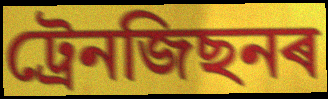
ট্ৰেনজিছনৰ